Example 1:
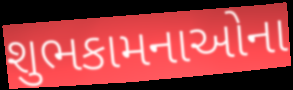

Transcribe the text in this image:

શુભકામનાઓના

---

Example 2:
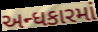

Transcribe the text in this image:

અન્ધકારમાં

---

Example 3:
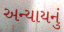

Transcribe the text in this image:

અન્યાયનું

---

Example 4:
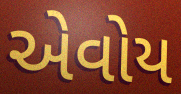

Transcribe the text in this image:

એવોય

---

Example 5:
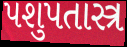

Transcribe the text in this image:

પશુપતાસ્ત્ર